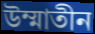
উম্মাতীন